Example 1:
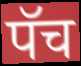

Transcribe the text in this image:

पॅच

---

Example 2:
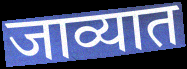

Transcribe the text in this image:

जाव्यात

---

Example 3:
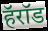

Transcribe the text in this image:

हॅरॉड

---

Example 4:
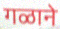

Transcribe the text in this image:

गळाने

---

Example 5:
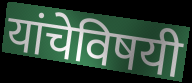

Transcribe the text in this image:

यांचेविषयी